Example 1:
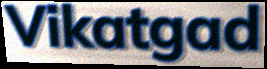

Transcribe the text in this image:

Vikatgad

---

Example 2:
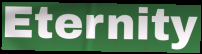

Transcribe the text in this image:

Eternity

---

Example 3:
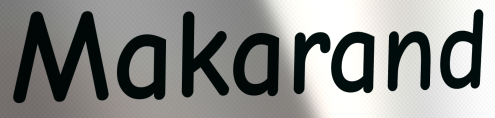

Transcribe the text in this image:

Makarand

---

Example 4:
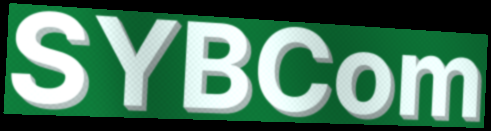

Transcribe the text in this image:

SYBCom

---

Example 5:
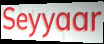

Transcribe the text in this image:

Seyyaar